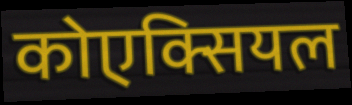
कोएक्सियल